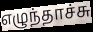
எழுந்தாச்சு